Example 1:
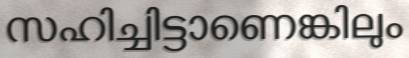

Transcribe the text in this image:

സഹിച്ചിട്ടാണെങ്കിലും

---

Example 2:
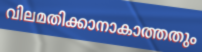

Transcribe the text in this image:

വിലമതിക്കാനാകാത്തതും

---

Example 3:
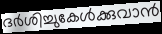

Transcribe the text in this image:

ദർശിച്ചുകേൾക്കുവാൻ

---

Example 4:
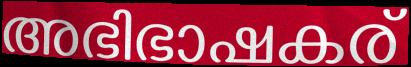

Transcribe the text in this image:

അഭിഭാഷകര്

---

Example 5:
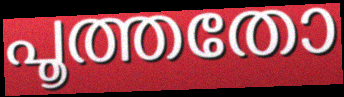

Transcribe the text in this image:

പൂത്തതോ